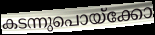
കടന്നുപൊയ്ക്കോ